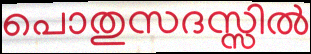
പൊതുസദസ്സിൽ